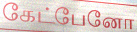
கேட்பேனோ